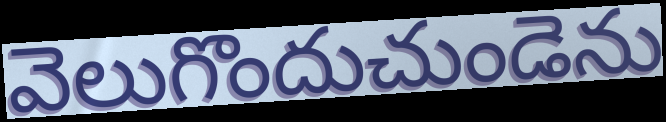
వెలుగొందుచుండెను